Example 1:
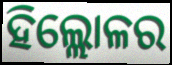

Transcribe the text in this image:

ହିଲ୍ଲୋଳର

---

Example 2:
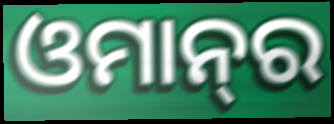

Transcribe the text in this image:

ଓମାନ୍‌ର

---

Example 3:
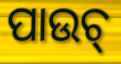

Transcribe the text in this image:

ପାଉଚ୍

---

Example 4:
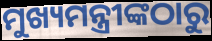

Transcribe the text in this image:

ମୁଖ୍ୟମନ୍ତ୍ରୀଙ୍କଠାରୁ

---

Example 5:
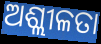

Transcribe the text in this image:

ଅଶ୍ଲୀଳତା